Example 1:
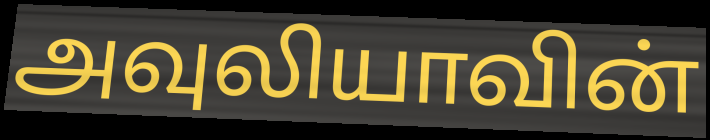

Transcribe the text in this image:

அவுலியாவின்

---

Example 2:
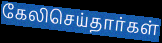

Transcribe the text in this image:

கேலிசெய்தார்கள்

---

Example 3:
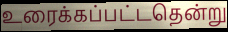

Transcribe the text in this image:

உரைக்கப்பட்டதென்று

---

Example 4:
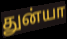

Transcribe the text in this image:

துன்யா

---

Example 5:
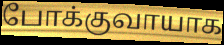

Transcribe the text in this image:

போக்குவாயாக